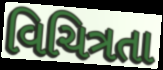
વિચિત્રતા